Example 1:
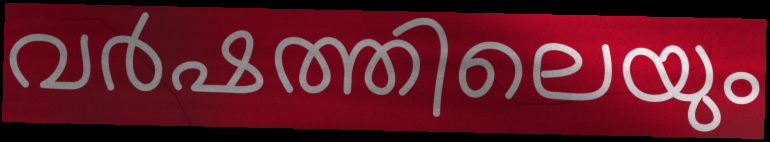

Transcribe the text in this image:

വർഷത്തിലെയും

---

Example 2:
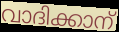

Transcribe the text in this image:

വാദിക്കാന്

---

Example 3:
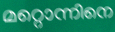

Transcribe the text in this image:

മറ്റൊന്നിനെ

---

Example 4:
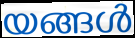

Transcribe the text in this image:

യങ്ങൾ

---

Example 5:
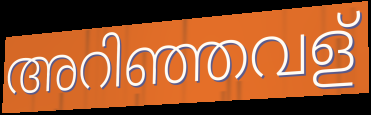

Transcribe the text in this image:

അറിഞ്ഞവള്